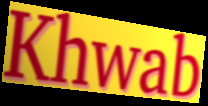
Khwab